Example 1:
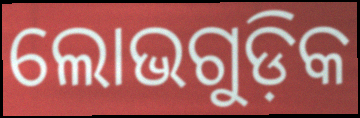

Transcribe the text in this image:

ଲୋଭଗୁଡ଼ିକ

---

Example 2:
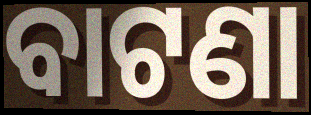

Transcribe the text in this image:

ବାଟଣା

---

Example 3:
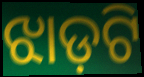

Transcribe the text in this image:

ଝାଡ଼ଟି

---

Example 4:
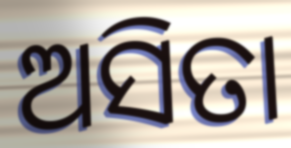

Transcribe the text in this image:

ଅସିତା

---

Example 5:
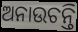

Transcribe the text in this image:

ଅନାଉଚନ୍ତି